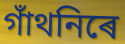
গাঁথনিৰে